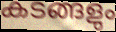
കടങ്ങളും